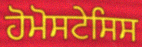
ਹੋਮੋਸਟੇਸਿਸ